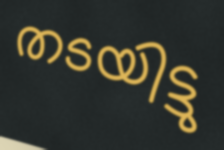
തടയിട്ടു